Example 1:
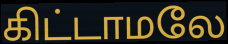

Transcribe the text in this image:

கிட்டாமலே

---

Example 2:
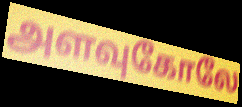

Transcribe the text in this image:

அளவுகோலே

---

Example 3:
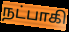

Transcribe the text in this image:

நட்பாகி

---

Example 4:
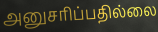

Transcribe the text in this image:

அனுசரிப்பதில்லை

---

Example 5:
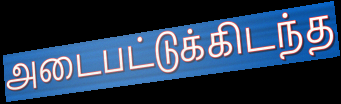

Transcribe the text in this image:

அடைபட்டுக்கிடந்த